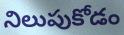
నిలుపుకోడం